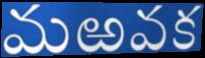
మఱవక